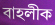
বাহলীক